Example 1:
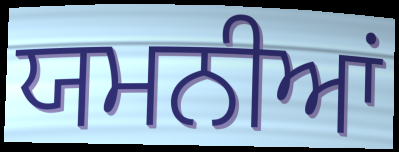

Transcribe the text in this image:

ਯਮਨੀਆਂ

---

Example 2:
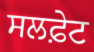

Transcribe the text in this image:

ਸਲਫ਼ੇਟ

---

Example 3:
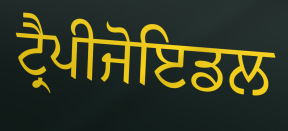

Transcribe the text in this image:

ਟ੍ਰੈਪੀਜੋਇਡਲ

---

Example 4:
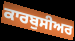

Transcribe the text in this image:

ਕਾਰਬੁਸੀਅਰ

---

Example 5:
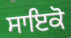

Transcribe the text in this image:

ਸਾਇਕੋ